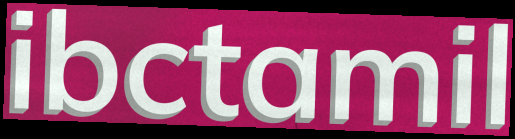
ibctamil